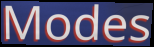
Modes